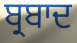
ਬ੍ਰਬਾਦ